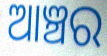
ଆଞ୍ଚର